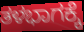
ತಳಭಾಗಕ್ಕೆ